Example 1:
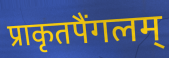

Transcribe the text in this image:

प्राकृतपैंगलम्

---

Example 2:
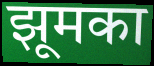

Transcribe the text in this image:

झूमका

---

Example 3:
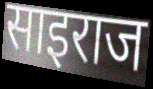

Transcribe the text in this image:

साइराज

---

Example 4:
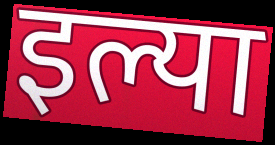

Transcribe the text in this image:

इल्या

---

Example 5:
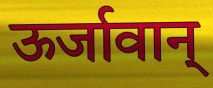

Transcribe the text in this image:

ऊर्जावान्